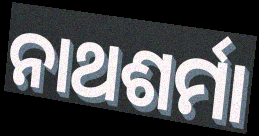
ନାଥଶର୍ମା